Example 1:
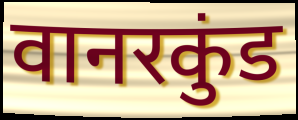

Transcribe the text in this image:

वानरकुंड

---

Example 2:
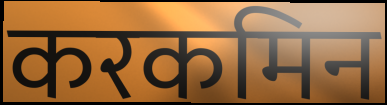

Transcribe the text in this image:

करकमिन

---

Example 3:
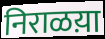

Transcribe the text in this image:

निराळय़ा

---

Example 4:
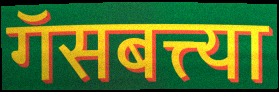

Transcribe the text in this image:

गॅसबत्त्या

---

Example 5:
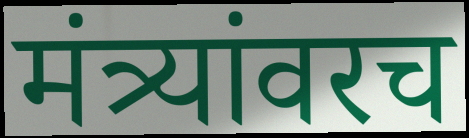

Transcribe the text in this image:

मंत्र्यांवरच